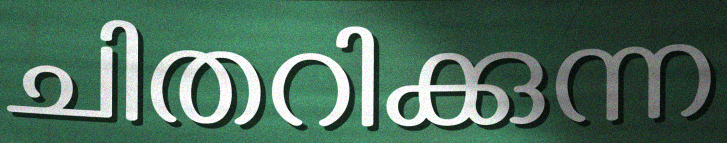
ചിതറിക്കുന്ന